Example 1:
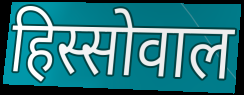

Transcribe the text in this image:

हिस्सोवाल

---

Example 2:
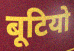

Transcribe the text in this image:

बूटियो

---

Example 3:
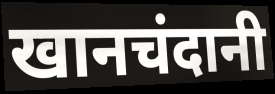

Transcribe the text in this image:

खानचंदानी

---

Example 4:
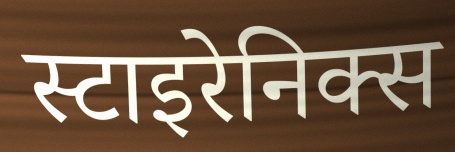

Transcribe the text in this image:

स्टाइरेनिक्स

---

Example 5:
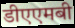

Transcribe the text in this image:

डीएएमबी